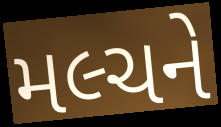
મલ્ચને